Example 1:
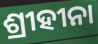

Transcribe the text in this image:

ଶ୍ରୀହୀନା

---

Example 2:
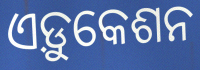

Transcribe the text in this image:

ଏଡ଼ୁକେଶନ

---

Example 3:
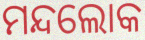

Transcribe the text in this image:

ମନ୍ଦଲୋକ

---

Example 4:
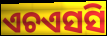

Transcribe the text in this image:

ଏଚଏସସି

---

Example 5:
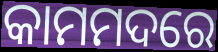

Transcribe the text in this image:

କାମମଦରେ